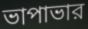
ভাপাভার